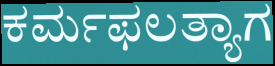
ಕರ್ಮಫಲತ್ಯಾಗ